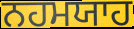
ਨਹਮਯਾਹ